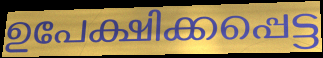
ഉപേക്ഷിക്കപ്പെട്ട